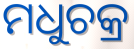
ମଧୁଚକ୍ର